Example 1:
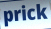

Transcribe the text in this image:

prick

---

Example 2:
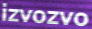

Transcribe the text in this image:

izvozvo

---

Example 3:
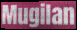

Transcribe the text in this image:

Mugilan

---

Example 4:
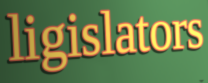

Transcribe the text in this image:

ligislators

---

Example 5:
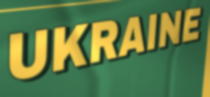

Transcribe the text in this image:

UKRAINE